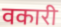
वकारी